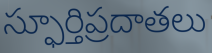
స్ఫూర్తిప్రదాతలు